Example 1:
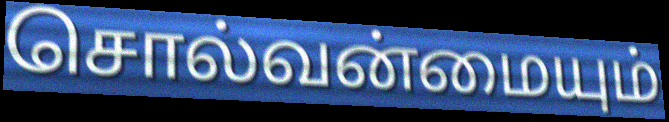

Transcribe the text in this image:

சொல்வன்மையும்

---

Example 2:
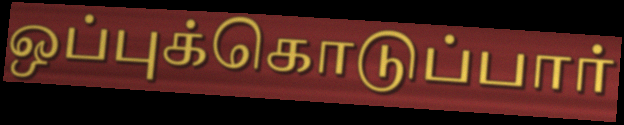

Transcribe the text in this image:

ஒப்புக்கொடுப்பார்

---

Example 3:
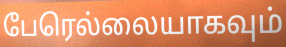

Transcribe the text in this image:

பேரெல்லையாகவும்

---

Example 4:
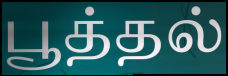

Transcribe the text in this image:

பூத்தல்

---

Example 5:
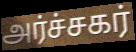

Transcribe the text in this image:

அர்ச்சகர்